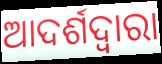
ଆଦର୍ଶଦ୍ୱାରା